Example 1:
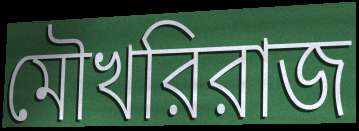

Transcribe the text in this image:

মৌখরিরাজ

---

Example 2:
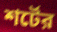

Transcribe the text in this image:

শর্টের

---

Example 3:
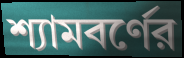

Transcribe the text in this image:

শ্যামবর্ণের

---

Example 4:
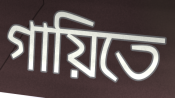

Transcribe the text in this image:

গায়িতে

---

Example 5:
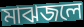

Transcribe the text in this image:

মাঝজলে